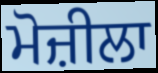
ਮੋਜ਼ੀਲਾ